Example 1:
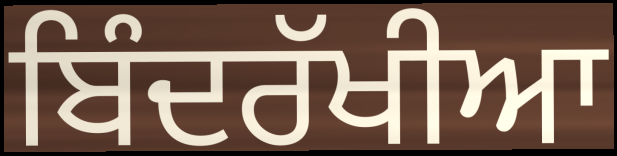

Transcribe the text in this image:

ਬਿੰਦਰੱਖੀਆ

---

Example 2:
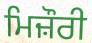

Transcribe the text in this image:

ਮਿਜ਼ੌਰੀ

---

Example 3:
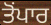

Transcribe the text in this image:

ਤੋਂਪਾਰ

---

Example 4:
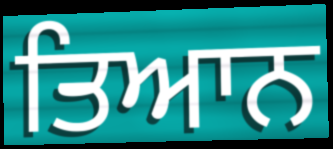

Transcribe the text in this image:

ਤਿਆਨ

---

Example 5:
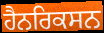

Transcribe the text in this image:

ਹੈਨਰਿਕਸਨ